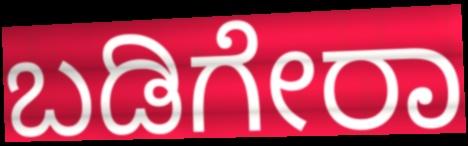
ಬಡಿಗೇರಾ